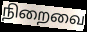
நிறைவை